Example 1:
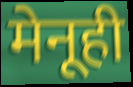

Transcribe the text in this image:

मेनूही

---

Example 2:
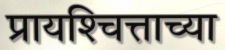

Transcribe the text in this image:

प्रायश्‍चित्ताच्या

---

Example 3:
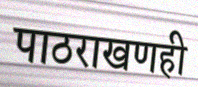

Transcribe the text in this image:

पाठराखणही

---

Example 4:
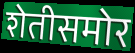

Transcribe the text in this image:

शेतीसमोर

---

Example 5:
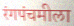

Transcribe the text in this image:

रंगपंचमीला